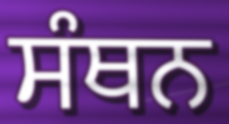
ਸੰਥਨ